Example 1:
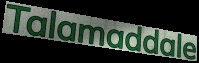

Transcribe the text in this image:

Talamaddale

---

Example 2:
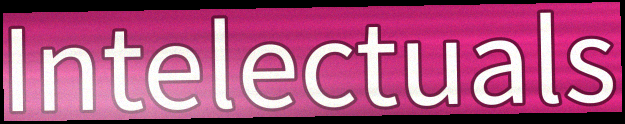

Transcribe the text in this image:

Intelectuals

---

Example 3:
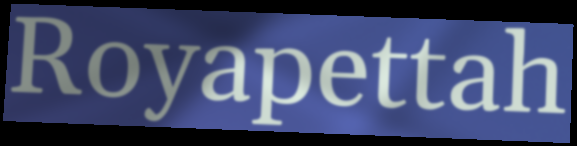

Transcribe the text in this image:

Royapettah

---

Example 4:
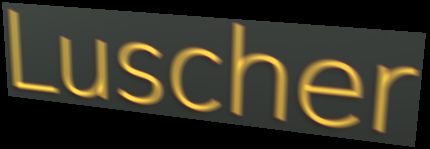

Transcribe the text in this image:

Luscher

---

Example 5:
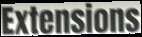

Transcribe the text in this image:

Extensions